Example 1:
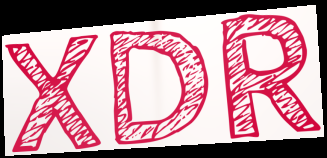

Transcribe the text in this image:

XDR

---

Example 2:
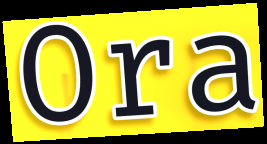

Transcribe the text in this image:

Ora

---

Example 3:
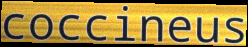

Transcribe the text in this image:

coccineus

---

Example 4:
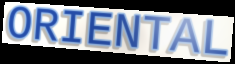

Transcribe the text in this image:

ORIENTAL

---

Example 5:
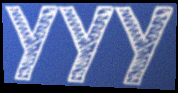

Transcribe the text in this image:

yyy